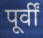
पूर्वीं